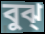
বুঝ্